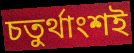
চতুর্থাংশই